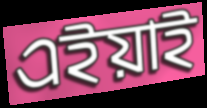
এইয়াই